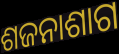
ଶଜନାଶାଗ